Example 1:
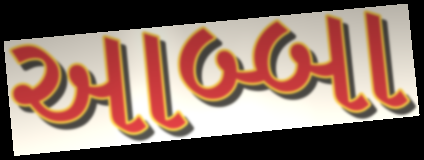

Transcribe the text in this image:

આબ્બા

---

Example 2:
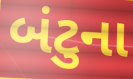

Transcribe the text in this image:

બંટુના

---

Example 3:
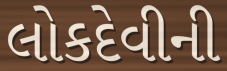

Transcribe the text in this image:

લોકદેવીની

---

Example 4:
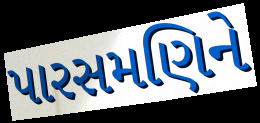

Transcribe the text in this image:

પારસમણિને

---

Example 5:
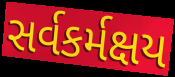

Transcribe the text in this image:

સર્વકર્મક્ષય